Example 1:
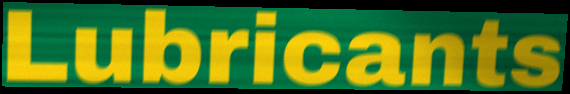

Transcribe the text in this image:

Lubricants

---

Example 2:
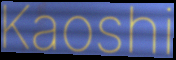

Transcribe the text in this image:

Kaoshi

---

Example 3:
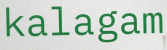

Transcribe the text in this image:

kalagam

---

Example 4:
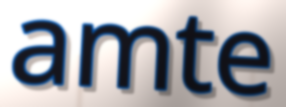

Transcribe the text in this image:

amte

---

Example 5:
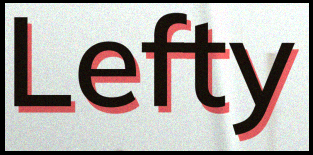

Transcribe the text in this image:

Lefty